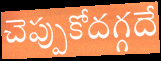
చెప్పుకోదగ్గదే